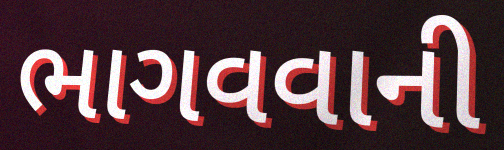
ભાગવવાની